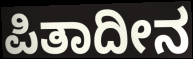
ಪಿತಾದೀನ